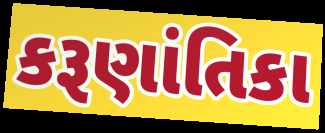
કરૂણાંતિકા